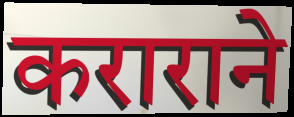
कराराने